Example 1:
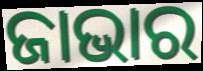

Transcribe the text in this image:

ଜାଭାର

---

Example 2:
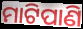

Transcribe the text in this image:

ମାଟିପାଣି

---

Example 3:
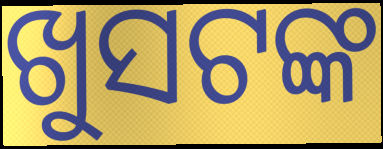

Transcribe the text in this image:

ଖୁସଟଙ୍କ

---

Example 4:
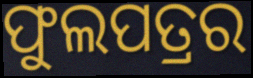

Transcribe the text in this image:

ଫୁଲପତ୍ରର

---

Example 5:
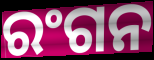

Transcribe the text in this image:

ରଂଗନ